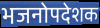
भजनोपदेशक